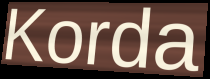
Korda